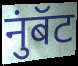
नुंबॅट